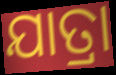
ଯାତ୍ରା